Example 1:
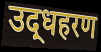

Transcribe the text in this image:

उद्धहरण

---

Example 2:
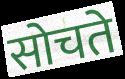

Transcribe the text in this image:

सोचते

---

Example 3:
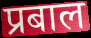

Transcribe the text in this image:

प्रबाल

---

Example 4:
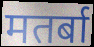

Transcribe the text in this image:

मतर्बा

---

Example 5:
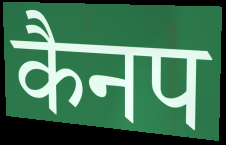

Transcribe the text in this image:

कैनप